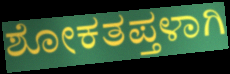
ಶೋಕತಪ್ತಳಾಗಿ